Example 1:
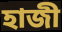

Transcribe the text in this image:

হাজী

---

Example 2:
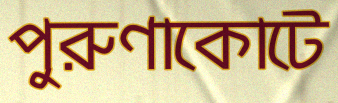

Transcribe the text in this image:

পুরুণাকোটে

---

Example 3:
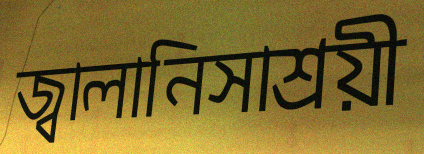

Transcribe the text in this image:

জ্বালানিসাশ্রয়ী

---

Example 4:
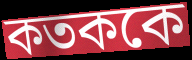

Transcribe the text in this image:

কতককে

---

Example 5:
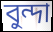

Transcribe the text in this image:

বুন্দা